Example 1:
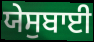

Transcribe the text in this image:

ਯੇਸੁਬਾਈ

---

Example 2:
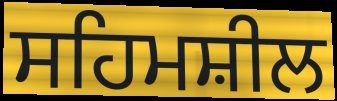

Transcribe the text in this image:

ਸਹਿਮਸ਼ੀਲ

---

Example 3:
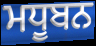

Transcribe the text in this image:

ਮਧੂਬਨ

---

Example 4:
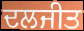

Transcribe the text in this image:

ਦਲਜੀਤ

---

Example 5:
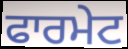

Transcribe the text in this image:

ਫਾਰਮੇਟ